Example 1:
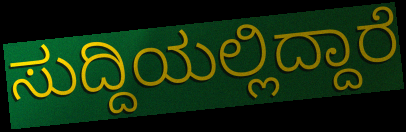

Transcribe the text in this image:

ಸುದ್ದಿಯಲ್ಲಿದ್ದಾರೆ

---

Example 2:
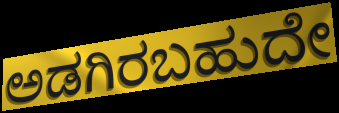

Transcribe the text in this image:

ಅಡಗಿರಬಹುದೇ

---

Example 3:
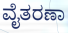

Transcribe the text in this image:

ವೈತರಣಾ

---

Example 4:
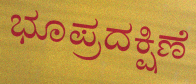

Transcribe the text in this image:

ಭೂಪ್ರದಕ್ಷಿಣೆ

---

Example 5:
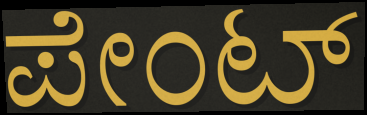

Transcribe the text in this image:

ಪೇಂಟ್